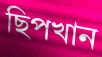
ছিপখান